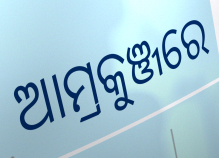
ଆମ୍ରକୁଞ୍ଜରେ